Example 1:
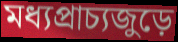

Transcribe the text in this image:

মধ্যপ্রাচ্যজুড়ে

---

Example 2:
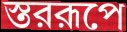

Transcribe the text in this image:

স্তররূপে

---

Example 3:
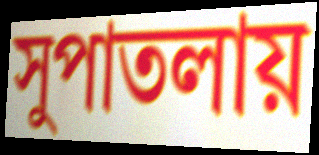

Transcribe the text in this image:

সুপাতলায়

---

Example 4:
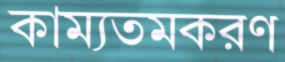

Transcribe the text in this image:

কাম্যতমকরণ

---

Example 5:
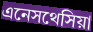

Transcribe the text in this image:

এনেসথেসিয়া